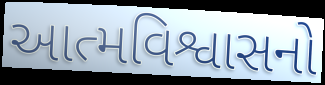
આત્મવિશ્વાસનો